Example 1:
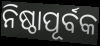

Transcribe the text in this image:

ନିଷ୍ଠାପୂର୍ବକ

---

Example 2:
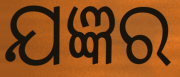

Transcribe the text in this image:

ଯଜ୍ଞର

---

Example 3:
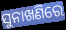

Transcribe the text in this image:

ସୁନାଖଣିରେ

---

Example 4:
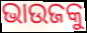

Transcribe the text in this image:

ଭାଉଜକୁ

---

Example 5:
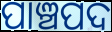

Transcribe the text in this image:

ପାଞ୍ଚପଦ